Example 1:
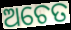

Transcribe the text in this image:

ଅଚେତ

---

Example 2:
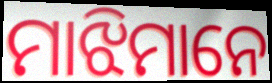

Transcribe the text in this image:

ମାଝିମାନେ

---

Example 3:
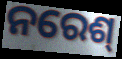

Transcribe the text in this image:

ନରେଶ୍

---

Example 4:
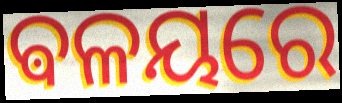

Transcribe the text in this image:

ଵଳୟରେ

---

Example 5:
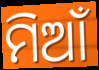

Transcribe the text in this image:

ମିଆଁ